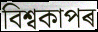
বিশ্বকাপৰ